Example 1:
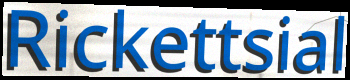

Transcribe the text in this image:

Rickettsial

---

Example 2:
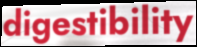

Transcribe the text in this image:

digestibility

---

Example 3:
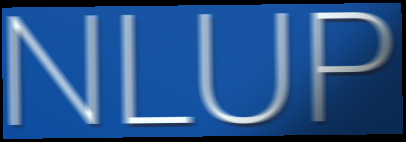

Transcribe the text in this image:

NLUP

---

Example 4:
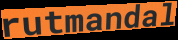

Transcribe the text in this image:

rutmandal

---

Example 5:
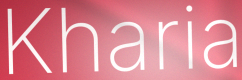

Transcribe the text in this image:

Kharia